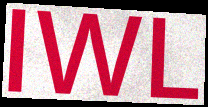
IWL